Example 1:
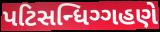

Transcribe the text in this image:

પટિસન્ધિગ્ગહણે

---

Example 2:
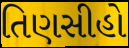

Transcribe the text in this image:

તિણસીહો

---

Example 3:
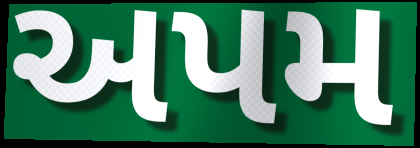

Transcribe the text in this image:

અપમ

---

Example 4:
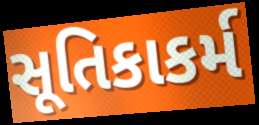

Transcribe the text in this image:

સૂતિકાકર્મ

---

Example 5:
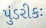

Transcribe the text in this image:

પુંડરીકઃ